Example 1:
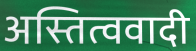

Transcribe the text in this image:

अस्तित्ववादी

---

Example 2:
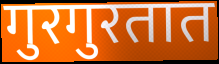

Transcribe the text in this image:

गुरगुरतात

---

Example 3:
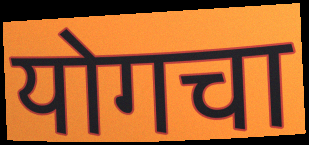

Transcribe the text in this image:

योगचा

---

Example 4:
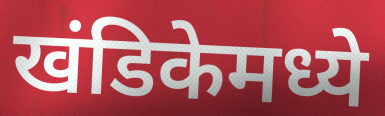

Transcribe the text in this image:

खंडिकेमध्ये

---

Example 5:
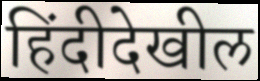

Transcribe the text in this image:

हिंदीदेखील